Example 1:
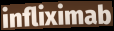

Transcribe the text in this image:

infliximab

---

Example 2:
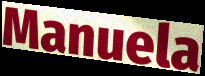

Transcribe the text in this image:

Manuela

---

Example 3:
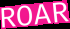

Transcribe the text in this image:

ROAR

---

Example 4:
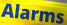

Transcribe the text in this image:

Alarms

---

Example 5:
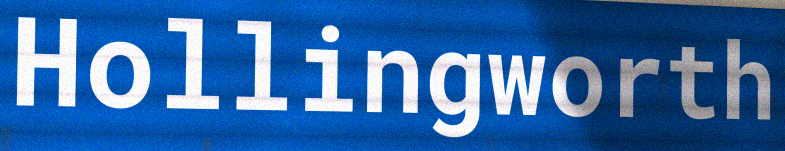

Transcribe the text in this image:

Hollingworth